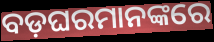
ବଡ଼ଘରମାନଙ୍କରେ